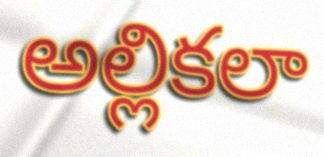
అల్లికలా